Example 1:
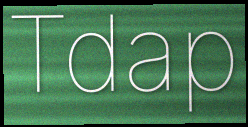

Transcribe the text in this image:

Tdap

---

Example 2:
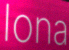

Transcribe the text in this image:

lona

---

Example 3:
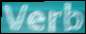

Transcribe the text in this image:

Verb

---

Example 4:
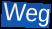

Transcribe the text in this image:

Weg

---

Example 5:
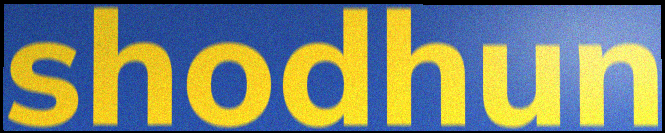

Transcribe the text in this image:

shodhun